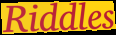
Riddles